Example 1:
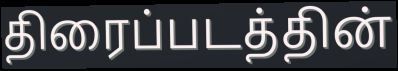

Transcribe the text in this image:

திரைப்படத்தின்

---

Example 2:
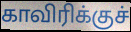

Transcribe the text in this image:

காவிரிக்குச்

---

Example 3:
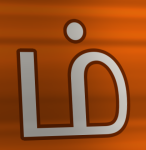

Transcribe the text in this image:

ம்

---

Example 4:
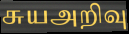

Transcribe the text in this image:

சுயஅறிவு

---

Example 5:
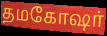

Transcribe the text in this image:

தமகோஷர்